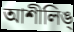
আশীলিঙ্